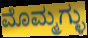
ಮೊಮ್ಮಗ್ಳು